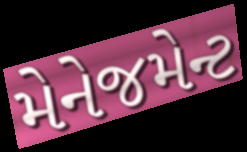
મેનેજમેન્ટ